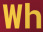
Wh